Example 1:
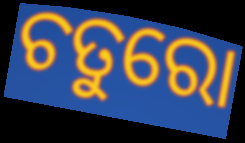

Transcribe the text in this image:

ଚତୁରୋ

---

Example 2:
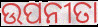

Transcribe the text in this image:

ଉପନୀତା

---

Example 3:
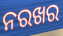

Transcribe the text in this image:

ନରଖର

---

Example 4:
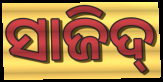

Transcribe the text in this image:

ସାଜିଦ୍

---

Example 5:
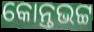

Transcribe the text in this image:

କୋନ୍ତଭଟ୍ଟ